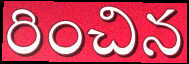
రించిన